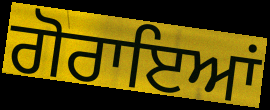
ਗੋਰਾਇਆਂ